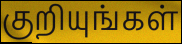
குறியுங்கள்